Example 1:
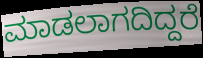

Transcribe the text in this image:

ಮಾಡಲಾಗದಿದ್ದರೆ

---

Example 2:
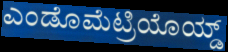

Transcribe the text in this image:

ಎಂಡೊಮೆಟ್ರಿಯೊಯ್ಡ್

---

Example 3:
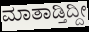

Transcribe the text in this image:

ಮಾತಾಡ್ತಿದ್ದೀ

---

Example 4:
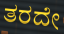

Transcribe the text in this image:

ತರದೇ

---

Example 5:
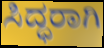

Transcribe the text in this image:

ಸಿದ್ಧರಾಗಿ